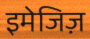
इमेजिज़